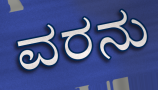
ವರನು